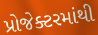
પ્રોજેક્ટરમાંથી